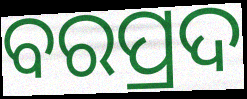
ବରପ୍ରଦ